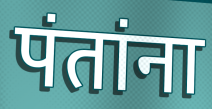
पंतांना